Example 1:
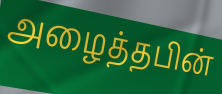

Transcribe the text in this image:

அழைத்தபின்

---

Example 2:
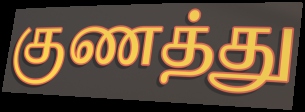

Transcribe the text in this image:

குணத்து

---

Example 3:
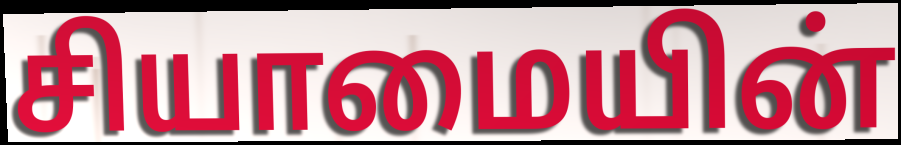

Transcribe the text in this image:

சியாமையின்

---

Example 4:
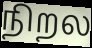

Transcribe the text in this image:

நிறல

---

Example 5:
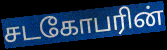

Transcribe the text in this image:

சடகோபரின்